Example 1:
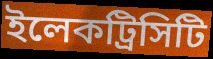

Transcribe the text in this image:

ইলেকট্রিসিটি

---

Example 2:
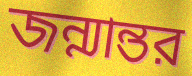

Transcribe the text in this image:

জন্মান্তর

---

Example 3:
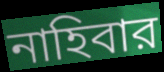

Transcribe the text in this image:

নাহিবার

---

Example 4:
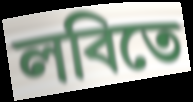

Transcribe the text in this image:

লবিতে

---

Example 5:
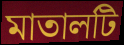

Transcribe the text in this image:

মাতালটি